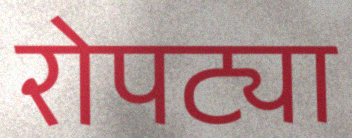
रोपट्या